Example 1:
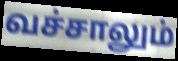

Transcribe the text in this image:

வச்சாலும்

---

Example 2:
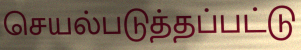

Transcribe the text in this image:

செயல்படுத்தப்பட்டு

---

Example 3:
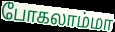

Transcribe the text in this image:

போகலாம்மா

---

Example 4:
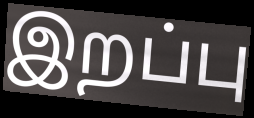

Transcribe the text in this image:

இறப்பு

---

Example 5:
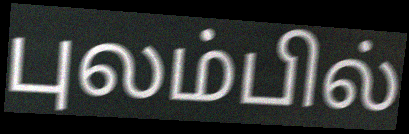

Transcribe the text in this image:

புலம்பில்